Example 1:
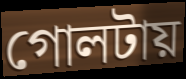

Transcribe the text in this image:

গোলটায়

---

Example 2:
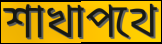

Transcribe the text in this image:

শাখাপথে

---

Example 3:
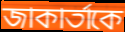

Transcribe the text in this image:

জাকার্তাকে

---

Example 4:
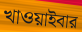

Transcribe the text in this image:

খাওয়াইবার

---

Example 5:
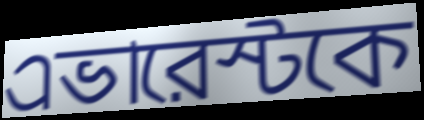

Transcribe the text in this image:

এভারেস্টকে